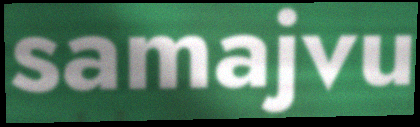
samajvu